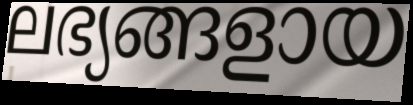
ലഭ്യങ്ങളായ